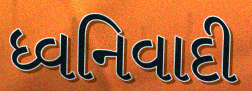
ધ્વનિવાદી